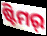
ଷ୍ଟିମର୍